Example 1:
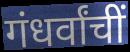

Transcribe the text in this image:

गंधर्वांचीं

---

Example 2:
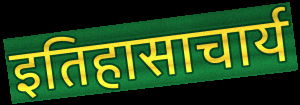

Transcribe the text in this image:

इतिहासाचार्य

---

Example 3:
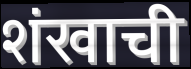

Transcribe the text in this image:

शंखाची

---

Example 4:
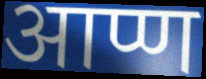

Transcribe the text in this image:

आप्ण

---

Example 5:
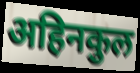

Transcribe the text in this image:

अहिनकुल